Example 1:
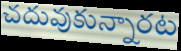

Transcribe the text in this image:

చదువుకున్నారట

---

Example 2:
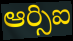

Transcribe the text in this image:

ఆర్సిఐ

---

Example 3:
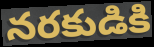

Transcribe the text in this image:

నరకుడికి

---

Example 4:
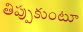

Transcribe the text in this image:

తిప్పుకుంటూ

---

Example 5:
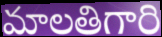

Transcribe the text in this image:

మాలతిగారి